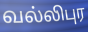
வல்லிபுர